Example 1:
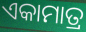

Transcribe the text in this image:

ଏକାମାତ୍ର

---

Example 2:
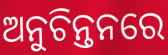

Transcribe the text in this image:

ଅନୁଚିନ୍ତନରେ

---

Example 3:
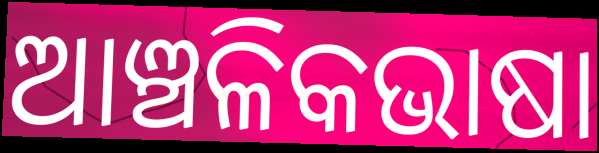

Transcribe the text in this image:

ଆଞ୍ଚଳିକଭାଷା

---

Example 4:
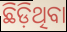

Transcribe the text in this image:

ଛିଡ଼ିଥିବା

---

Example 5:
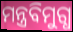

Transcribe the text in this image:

ମନ୍ତ୍ରବିମୁଗ୍ଧ